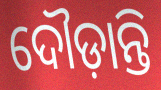
ଦୌଡ଼ାନ୍ତି